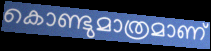
കൊണ്ടുമാത്രമാണ്